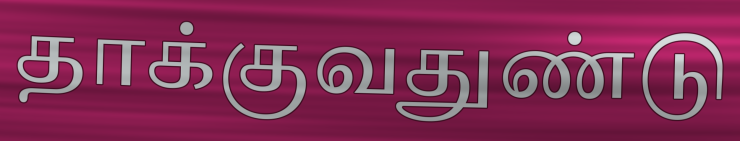
தாக்குவதுண்டு